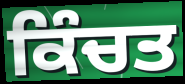
ਕਿੰਚਤ